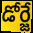
డోర్జే